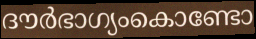
ദൗർഭാഗ്യംകൊണ്ടോ